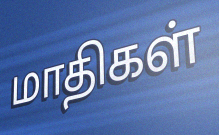
மாதிகள்